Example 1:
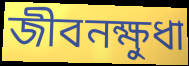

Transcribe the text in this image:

জীবনক্ষুধা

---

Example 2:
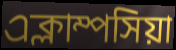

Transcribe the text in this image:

এক্লাম্পসিয়া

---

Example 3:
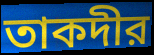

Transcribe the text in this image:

তাকদীর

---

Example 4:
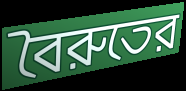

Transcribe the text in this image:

বৈরুতের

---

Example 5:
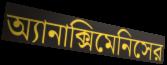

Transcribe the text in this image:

অ্যানাক্সিমেনিসের